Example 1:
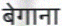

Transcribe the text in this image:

बेगाना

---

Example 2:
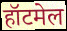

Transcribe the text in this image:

हॉटमेल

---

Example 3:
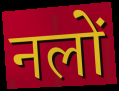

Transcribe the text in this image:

नलों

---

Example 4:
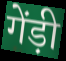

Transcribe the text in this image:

गेंड़ी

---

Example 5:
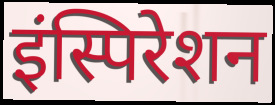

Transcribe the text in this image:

इंस्पिरेशन